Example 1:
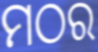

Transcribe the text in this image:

ମଠର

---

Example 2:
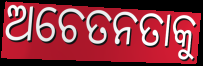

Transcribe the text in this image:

ଅଚେତନତାକୁ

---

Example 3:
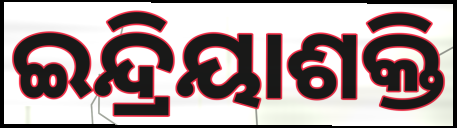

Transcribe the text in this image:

ଇନ୍ଦ୍ରିୟାଶକ୍ତି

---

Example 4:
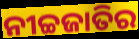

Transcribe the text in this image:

ନୀଚ୍ଚଜାତିର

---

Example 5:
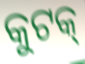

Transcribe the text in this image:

କୁଟକ୍